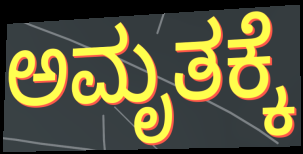
ಅಮೃತಕ್ಕೆ